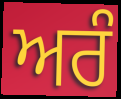
ਅਰੰ